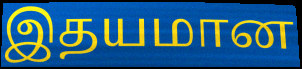
இதயமான